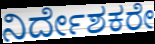
ನಿರ್ದೇಶಕರೇ